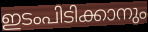
ഇടംപിടിക്കാനും